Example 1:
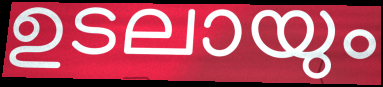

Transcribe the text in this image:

ഉടലായും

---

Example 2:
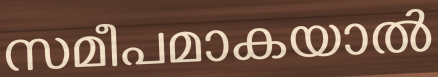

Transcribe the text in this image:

സമീപമാകയാൽ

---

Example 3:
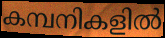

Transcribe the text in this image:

കമ്പനികളിൽ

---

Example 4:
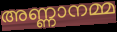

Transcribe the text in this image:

അണ്ണാനമ്മ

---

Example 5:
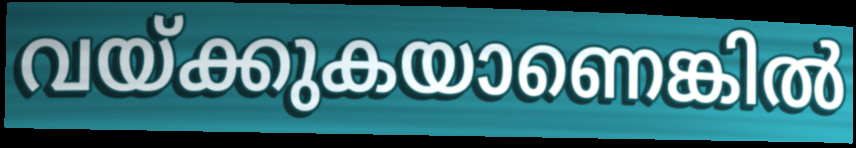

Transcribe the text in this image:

വയ്ക്കുകയാണെങ്കിൽ